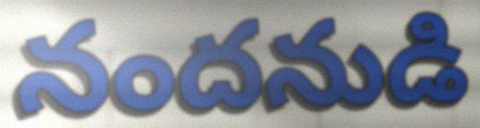
నందనుడి